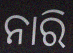
ନାରି